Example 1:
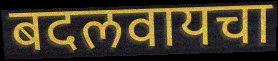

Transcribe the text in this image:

बदलवायचा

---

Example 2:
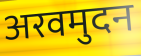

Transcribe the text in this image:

अरवमुदन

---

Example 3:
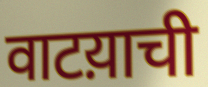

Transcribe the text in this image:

वाटय़ाची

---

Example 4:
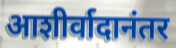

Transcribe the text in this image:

आशीर्वादानंतर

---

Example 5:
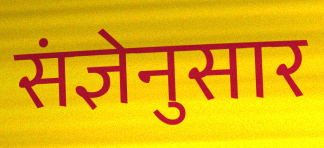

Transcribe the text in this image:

संज्ञेनुसार